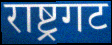
राष्ट्रगट